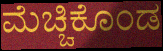
ಮೆಚ್ಚಿಕೊಂಡ